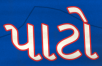
પાટો